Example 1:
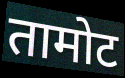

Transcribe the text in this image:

तामोट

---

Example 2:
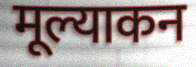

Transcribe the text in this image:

मूल्याकन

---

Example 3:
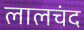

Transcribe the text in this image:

लालचंद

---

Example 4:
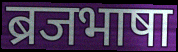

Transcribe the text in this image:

ब्रजभाषा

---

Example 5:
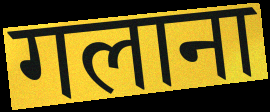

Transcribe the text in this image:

गलाना